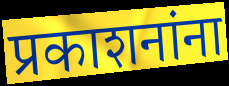
प्रकाशनांना